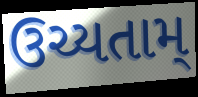
ઉચ્યતામ્